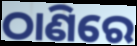
ଠାଣିରେ